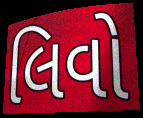
લિવો